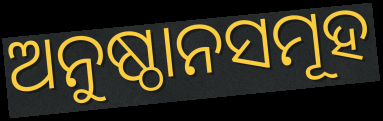
ଅନୁଷ୍ଠାନସମୂହ